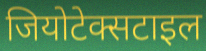
जियोटेक्सटाइल